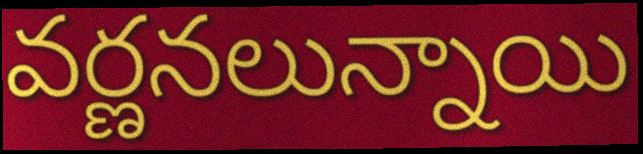
వర్ణనలున్నాయి